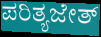
ಪರಿತ್ಯಜೇತ್